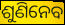
ଶୁଣିନେବ